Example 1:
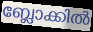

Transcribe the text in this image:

ബ്ലോക്കിൽ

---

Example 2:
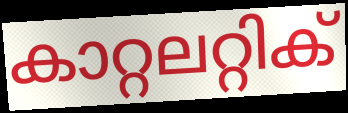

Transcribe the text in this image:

കാറ്റലറ്റിക്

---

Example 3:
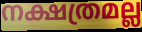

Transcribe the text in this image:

നക്ഷത്രമല്ല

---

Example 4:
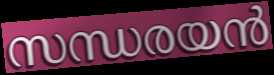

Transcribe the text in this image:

സന്ധരയൻ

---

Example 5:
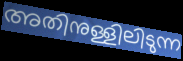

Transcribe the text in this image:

അതിനുള്ളിലിടുന്ന